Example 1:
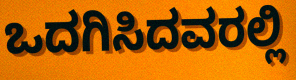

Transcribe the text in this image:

ಒದಗಿಸಿದವರಲ್ಲಿ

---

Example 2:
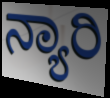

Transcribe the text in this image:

ನ್ಯಾರಿ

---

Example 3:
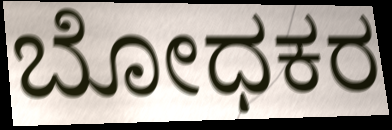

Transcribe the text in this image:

ಬೋಧಕರ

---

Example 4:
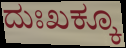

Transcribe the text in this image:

ದುಃಖಕ್ಕೂ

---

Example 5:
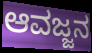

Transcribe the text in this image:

ಆವಜ್ಜನ